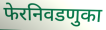
फेरनिवडणुका